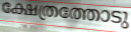
ക്ഷേത്രത്തോടു